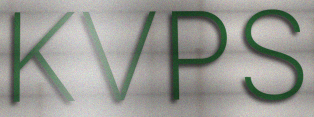
KVPS